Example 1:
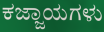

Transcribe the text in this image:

ಕಜ್ಜಾಯಗಳು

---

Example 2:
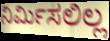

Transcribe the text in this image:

ನಿರ್ಮಿಸಲಿಲ್ಲ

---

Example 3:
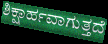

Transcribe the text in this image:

ಶಿಕ್ಷಾರ್ಹವಾಗುತ್ತದೆ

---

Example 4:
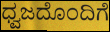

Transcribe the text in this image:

ಧ್ವಜದೊಂದಿಗೆ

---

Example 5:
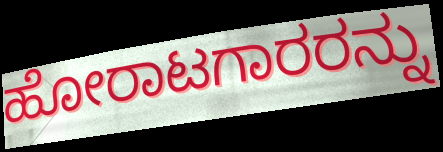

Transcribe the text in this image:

ಹೋರಾಟಗಾರರನ್ನು